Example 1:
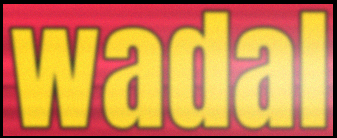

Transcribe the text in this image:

wadal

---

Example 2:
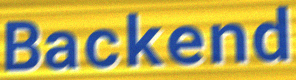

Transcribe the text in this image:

Backend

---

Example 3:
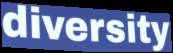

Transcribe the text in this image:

diversity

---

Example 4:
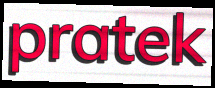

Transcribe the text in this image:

pratek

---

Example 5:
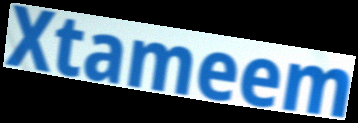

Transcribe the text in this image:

Xtameem